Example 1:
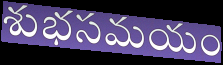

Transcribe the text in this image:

శుభసమయం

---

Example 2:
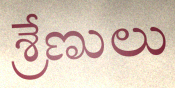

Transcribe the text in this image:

శ్రేణులు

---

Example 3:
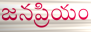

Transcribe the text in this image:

జనప్రియం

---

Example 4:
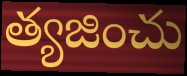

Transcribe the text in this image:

త్యజించు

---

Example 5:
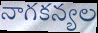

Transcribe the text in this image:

నాగకన్యల